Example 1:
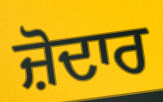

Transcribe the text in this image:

ਜ਼ੋਦਾਰ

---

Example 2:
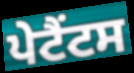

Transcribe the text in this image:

ਪੇਟੈਂਟਸ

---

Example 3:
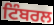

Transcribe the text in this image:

ਟਿੰਬਰਲ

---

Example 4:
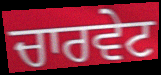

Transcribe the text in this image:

ਚਾਰਵੇਟ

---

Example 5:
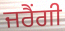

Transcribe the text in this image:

ਜਰੈਂਗੀ